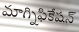
మాగ్నిఫికేషన్